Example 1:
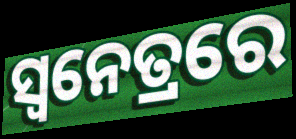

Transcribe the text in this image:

ସ୍ୱନେତ୍ରରେ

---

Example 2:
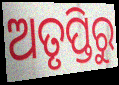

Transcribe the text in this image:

ଅତୃପ୍ତିରୁ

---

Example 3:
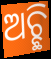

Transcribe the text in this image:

ଅଚ୍ଛି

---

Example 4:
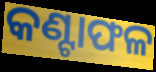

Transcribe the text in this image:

କଣ୍ଟାଫଳ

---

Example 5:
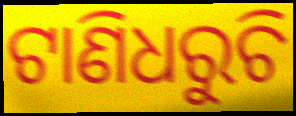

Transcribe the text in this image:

ଟାଣିଧରୁଚି